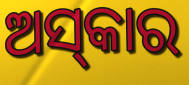
ଅସ୍‌କାର